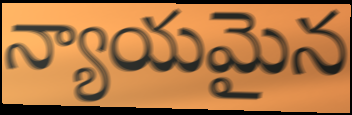
న్యాయమైన